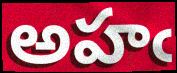
అహఁ